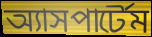
অ্যাসপার্টেম